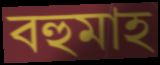
বহুমাহ